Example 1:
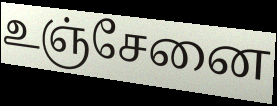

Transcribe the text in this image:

உஞ்சேனை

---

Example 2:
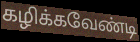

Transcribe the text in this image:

கழிக்கவேண்டி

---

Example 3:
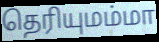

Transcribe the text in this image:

தெரியுமம்மா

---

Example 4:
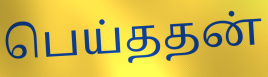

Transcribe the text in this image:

பெய்ததன்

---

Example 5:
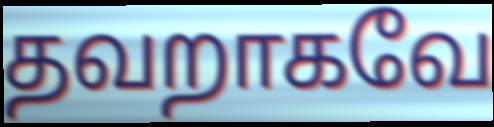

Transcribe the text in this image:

தவறாகவே